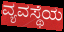
ವ್ಯವಸ್ಥೆಯ